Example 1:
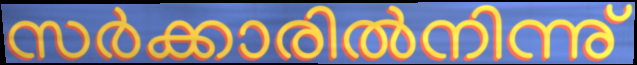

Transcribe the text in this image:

സർക്കാരിൽനിന്നു്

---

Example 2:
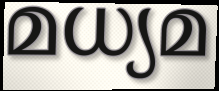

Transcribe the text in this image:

മധ്യമ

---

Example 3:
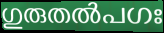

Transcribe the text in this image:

ഗുരുതൽപഗഃ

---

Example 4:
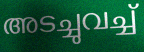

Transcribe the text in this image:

അടച്ചുവച്ച്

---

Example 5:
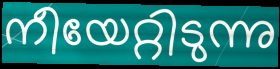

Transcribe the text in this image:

നീയേറ്റിടുന്നു